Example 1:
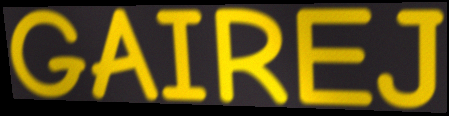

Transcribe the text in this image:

GAIREJ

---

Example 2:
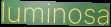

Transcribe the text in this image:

luminosa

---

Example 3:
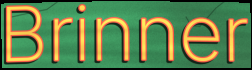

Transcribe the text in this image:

Brinner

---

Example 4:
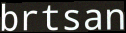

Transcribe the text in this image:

brtsan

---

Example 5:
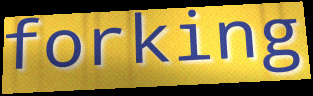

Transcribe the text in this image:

forking